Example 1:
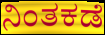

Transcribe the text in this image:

ನಿಂತಕಡೆ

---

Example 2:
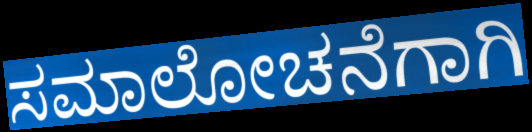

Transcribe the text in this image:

ಸಮಾಲೋಚನೆಗಾಗಿ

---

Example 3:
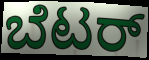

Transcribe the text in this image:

ಬೆಟರ್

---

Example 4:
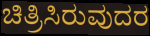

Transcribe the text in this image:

ಚಿತ್ರಿಸಿರುವುದರ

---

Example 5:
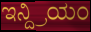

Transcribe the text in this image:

ಇನ್ದ್ರಿಯಂ